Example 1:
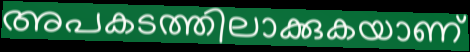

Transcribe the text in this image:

അപകടത്തിലാക്കുകയാണ്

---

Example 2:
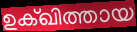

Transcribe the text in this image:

ഉക്ഖിത്തായ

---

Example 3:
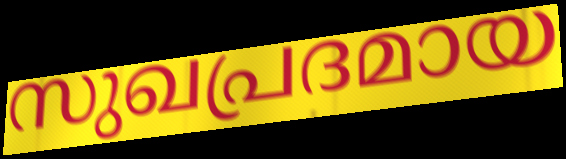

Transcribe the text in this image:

സുഖപ്രദമായ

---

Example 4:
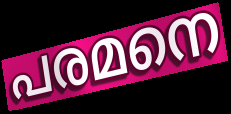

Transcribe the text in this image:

പരമനെ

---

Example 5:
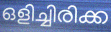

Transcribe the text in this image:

ഒളിച്ചിരിക്ക